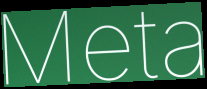
Meta